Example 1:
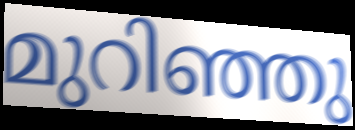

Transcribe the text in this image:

മുറിഞ്ഞു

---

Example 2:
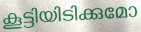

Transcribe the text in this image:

കൂട്ടിയിടിക്കുമോ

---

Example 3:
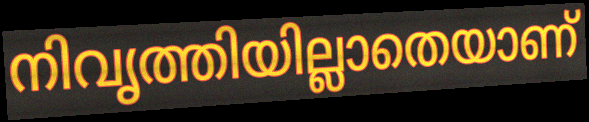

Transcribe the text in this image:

നിവൃത്തിയില്ലാതെയാണ്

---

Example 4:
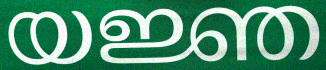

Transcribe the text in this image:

യജ്ഞ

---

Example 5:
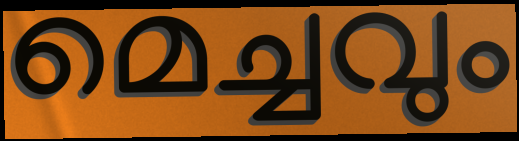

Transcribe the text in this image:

മെച്ചവും